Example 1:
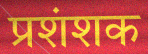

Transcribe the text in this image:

प्रशंशक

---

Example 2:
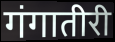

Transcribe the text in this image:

गंगातीरी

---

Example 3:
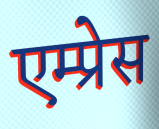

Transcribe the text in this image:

एम्प्रेस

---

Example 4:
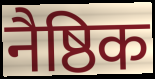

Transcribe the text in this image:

नैष्ठिक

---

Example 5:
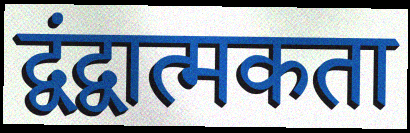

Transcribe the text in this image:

द्वंद्वात्मकता